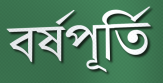
বর্ষপূর্তি